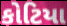
કોટિયા